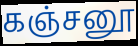
கஞ்சனூ